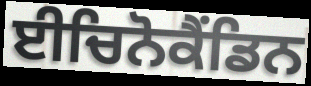
ਈਚਿਨੋਕੈਂਡਿਨ